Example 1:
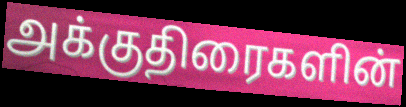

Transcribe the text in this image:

அக்குதிரைகளின்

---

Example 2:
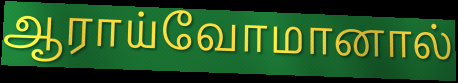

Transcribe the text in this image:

ஆராய்வோமானால்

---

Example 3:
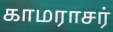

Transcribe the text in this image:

காமராசர்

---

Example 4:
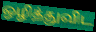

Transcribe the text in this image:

ஒழித்துவிட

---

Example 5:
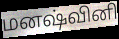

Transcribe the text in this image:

மனஷ்வினி